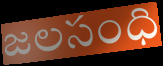
జలసంధి